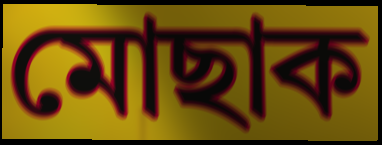
মোছাক